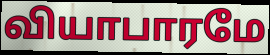
வியாபாரமே